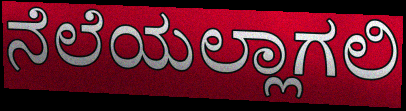
ನೆಲೆಯಲ್ಲಾಗಲಿ